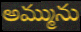
అమ్మును